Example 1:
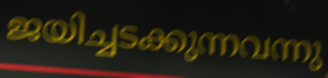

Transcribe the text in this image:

ജയിച്ചടക്കുന്നവന്നു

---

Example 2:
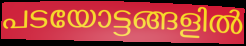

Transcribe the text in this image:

പടയോട്ടങ്ങളിൽ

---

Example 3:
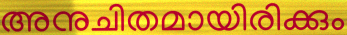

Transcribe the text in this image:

അനുചിതമായിരിക്കും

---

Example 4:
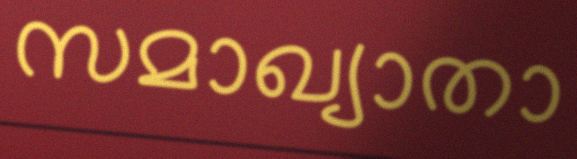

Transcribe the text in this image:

സമാഖ്യാതാ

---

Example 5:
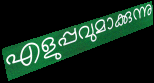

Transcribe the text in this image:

എളുപ്പവുമാക്കുന്നു